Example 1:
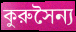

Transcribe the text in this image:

কুরুসৈন্য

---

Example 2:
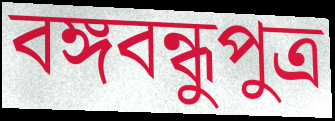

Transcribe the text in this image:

বঙ্গবন্ধুপুত্র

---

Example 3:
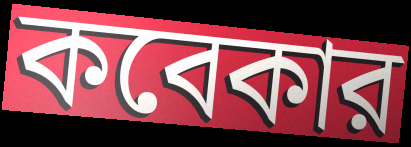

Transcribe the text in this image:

কবেকার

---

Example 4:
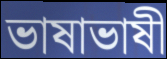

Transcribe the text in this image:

ভাষাভাষী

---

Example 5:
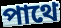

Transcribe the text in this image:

পাথে